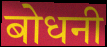
बोधनी